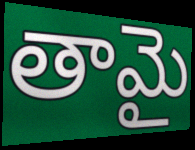
తామై